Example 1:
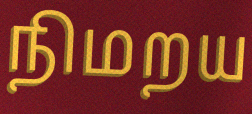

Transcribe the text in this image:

நிமறய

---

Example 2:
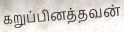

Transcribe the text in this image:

கறுப்பினத்தவன்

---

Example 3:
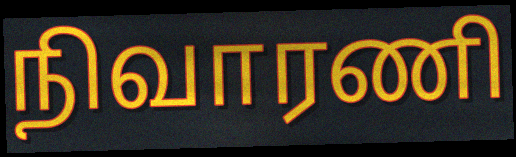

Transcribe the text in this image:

நிவாரணி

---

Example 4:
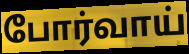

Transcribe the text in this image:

போர்வாய்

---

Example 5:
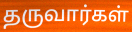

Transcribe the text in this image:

தருவார்கள்